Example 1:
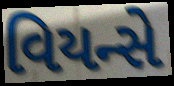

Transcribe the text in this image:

વિયન્સે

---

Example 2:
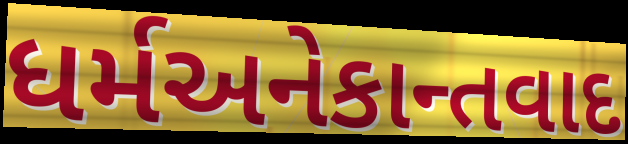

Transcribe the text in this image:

ધર્મઅનેકાન્તવાદ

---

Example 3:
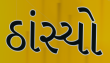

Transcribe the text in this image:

ઠાંસ્યો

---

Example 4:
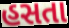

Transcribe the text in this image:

હસતા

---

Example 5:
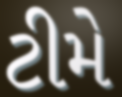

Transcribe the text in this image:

ટીમે